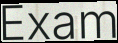
Exam